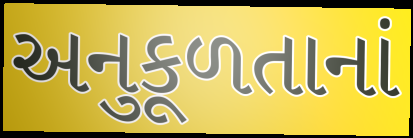
અનુકૂળતાનાં